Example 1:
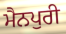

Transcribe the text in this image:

ਮੈਨਪੁਰੀ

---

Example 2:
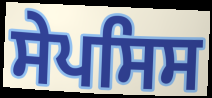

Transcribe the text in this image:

ਸੇਪਸਿਸ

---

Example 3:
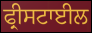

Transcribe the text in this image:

ਫ੍ਰੀਸਟਾਈਲ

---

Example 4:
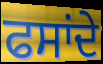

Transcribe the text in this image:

ਫਸਾਂਦੇ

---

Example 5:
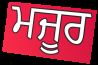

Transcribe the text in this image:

ਮਜੂਰ